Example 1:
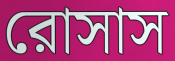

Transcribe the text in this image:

রোসাস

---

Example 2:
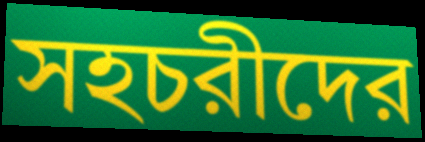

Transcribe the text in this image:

সহচরীদের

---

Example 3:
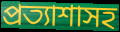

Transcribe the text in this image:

প্রত্যাশাসহ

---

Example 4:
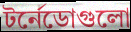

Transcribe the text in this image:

টর্নেডোগুলো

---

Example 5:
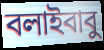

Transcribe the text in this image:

বলাইবাবু